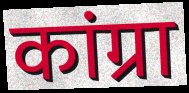
कांग्रा